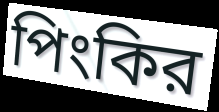
পিংকির